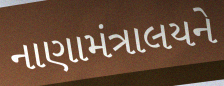
નાણામંત્રાલયને